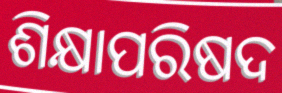
ଶିକ୍ଷାପରିଷଦ